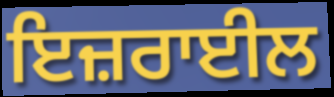
ਇਜ਼ਰਾਈਲ